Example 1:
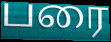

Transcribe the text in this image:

பரை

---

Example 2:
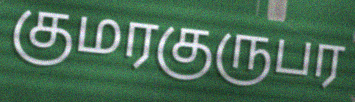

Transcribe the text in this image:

குமரகுருபர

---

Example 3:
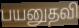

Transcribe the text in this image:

பயனுதவி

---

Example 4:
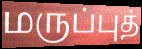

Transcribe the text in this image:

மருப்புத்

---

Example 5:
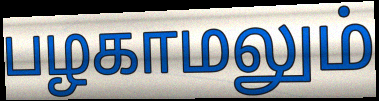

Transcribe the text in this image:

பழகாமலும்